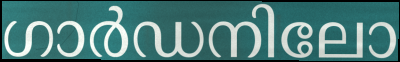
ഗാർഡനിലോ